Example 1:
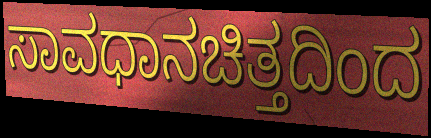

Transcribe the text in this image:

ಸಾವಧಾನಚಿತ್ತದಿಂದ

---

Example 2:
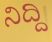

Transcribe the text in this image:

ನಿದ್ದಿ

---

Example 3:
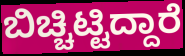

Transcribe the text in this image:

ಬಿಚ್ಚಿಟ್ಟಿದ್ದಾರೆ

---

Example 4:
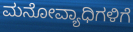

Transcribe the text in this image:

ಮನೋವ್ಯಾಧಿಗಳಿಗೆ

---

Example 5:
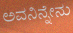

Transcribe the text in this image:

ಅವನಿನ್ನೇನು